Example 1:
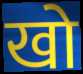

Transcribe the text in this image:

खो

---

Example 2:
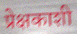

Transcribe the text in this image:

प्रेक्षकाशी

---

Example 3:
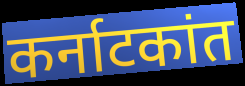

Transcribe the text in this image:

कर्नाटकांत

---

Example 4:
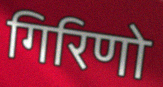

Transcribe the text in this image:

गिरिणो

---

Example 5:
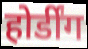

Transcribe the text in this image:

होर्डींग